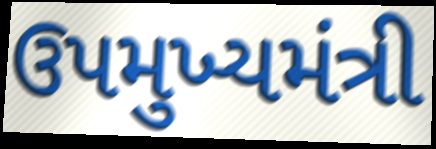
ઉપમુખ્યમંત્રી